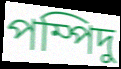
পম্পিদু